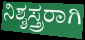
ನಿಶ್ಶಸ್ತ್ರರಾಗಿ